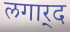
लगार्द